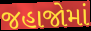
જહાજોમાં